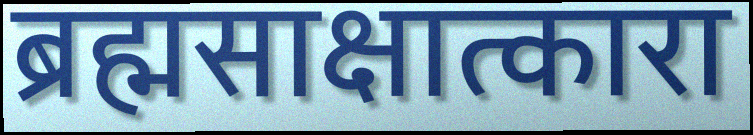
ब्रह्मसाक्षात्कारा